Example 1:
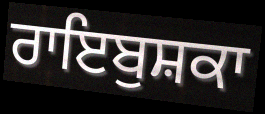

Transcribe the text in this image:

ਰਾਇਬੁਸ਼ਕਾ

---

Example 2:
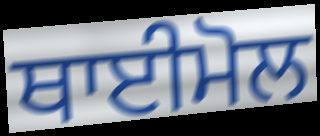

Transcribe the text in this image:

ਥਾਈਮੋਲ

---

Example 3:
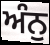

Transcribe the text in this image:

ਅੰਨੁ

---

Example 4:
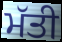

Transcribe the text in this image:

ਮੱਤੀ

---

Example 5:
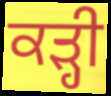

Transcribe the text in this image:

ਕੜ੍ਹੀ